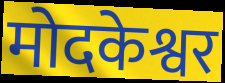
मोदकेश्वर